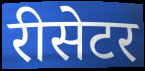
रीसेटर